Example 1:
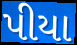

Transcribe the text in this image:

પીયા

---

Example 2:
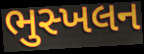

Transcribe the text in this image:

ભુસ્ખલન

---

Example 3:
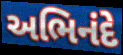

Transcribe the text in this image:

અભિનંદે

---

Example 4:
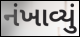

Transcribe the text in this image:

નંખાવ્યું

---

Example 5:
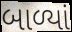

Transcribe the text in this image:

બાળ્યાં